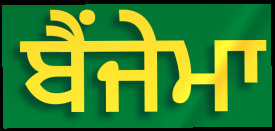
ਬੈਂਜੇਮਾ